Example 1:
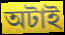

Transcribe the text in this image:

অটাই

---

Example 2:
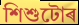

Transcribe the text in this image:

শিশুটোৰ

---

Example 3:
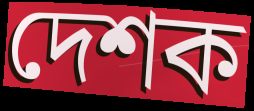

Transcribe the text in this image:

দেশক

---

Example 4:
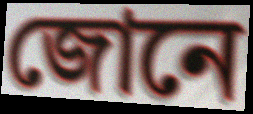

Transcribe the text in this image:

জোনে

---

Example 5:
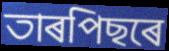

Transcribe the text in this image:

তাৰপিছৰে